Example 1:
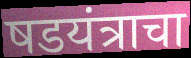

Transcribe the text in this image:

षडयंत्राचा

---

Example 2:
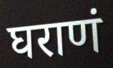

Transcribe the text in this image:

घराणं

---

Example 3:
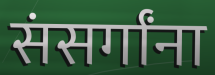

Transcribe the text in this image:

संसर्गांना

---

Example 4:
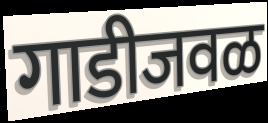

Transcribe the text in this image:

गाडीजवळ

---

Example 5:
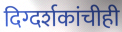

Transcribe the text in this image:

दिग्दर्शकांचीही